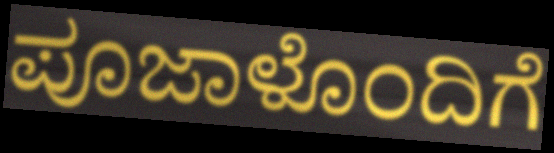
ಪೂಜಾಳೊಂದಿಗೆ